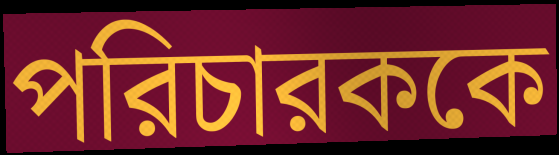
পরিচারককে